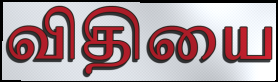
விதியை